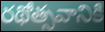
రథోత్సవానికి